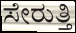
ಸೇರುತ್ತಿ